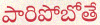
పారిపోబోతే